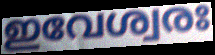
ഇവേശ്വരഃ